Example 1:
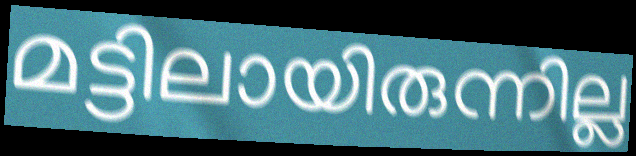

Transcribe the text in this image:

മട്ടിലായിരുന്നില്ല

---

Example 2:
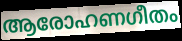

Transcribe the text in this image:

ആരോഹണഗീതം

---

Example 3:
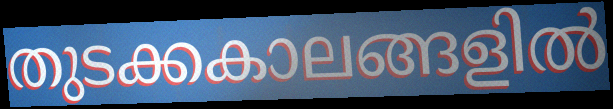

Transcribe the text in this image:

തുടക്കകാലങ്ങളിൽ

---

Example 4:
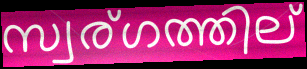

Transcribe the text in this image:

സ്വര്ഗത്തില്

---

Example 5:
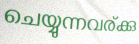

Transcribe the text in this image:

ചെയ്യുന്നവര്ക്കു